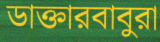
ডাক্তারবাবুরা